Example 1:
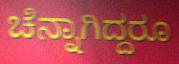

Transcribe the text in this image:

ಚೆನ್ನಾಗಿದ್ದರೂ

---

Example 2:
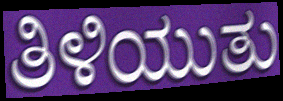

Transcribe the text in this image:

ತಿಳಿಯುತು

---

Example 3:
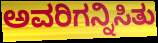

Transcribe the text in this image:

ಅವರಿಗನ್ನಿಸಿತು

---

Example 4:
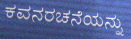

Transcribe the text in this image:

ಕವನರಚನೆಯನ್ನು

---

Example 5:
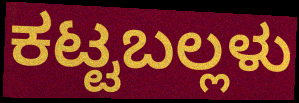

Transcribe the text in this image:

ಕಟ್ಟಬಲ್ಲಳು